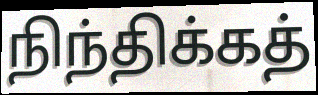
நிந்திக்கத்